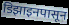
डिझाइनपासून